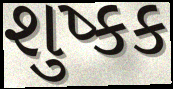
શુષ્કક